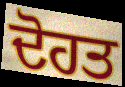
ਦੋਹਤ